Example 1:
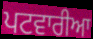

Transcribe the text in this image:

ਪਟਵਾਰੀਆ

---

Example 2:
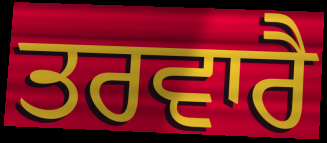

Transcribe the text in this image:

ਤਰਵਾਰੈ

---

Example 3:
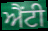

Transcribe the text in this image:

ਐਂਟੀ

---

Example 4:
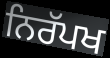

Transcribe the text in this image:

ਨਿਰੱਪਖ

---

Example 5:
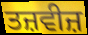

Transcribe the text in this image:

ਤਜ਼ਵੀਜ਼